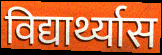
विद्यार्थ्यास